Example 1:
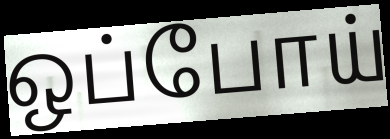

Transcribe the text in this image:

ஒப்போய்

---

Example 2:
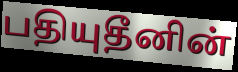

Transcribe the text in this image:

பதியுதீனின்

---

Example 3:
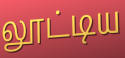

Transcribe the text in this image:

லூட்டிய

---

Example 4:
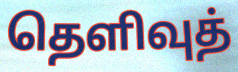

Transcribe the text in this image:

தெளிவுத்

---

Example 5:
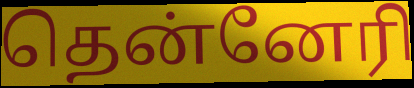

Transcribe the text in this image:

தென்னேரி